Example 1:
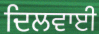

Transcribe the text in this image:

ਦਿਲਵਾਈ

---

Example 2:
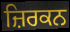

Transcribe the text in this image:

ਜ਼ਿਰਕਨ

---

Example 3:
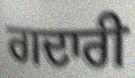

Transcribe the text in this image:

ਗਦਾਰੀ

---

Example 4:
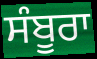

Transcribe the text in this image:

ਸੰਬੂਰਾ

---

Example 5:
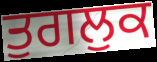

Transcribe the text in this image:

ਤੁਗਲੁਕ